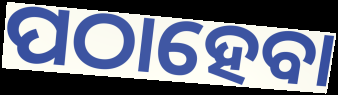
ପଠାହେବା